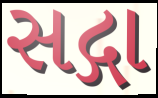
સદ્ગા